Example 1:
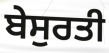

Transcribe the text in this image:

ਬੇਸੁਰਤੀ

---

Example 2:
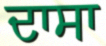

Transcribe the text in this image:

ਦਾਸਾ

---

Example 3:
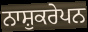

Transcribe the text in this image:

ਨਾਸ਼ੁਕਰੇਪਨ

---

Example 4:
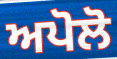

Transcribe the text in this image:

ਅਪੋਲੋ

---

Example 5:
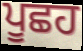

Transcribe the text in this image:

ਪੂਛਹ